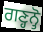
ਗਣ੍ਹਨ੍ਤੋ